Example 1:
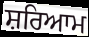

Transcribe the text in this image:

ਸ਼ਰਿਆਮ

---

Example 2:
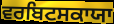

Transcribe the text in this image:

ਵਰਬਿਟਸਕਾਯਾ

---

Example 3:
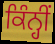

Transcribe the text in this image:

ਕਿੰਨ੍ਹੀਂ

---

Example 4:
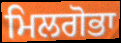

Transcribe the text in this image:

ਮਿਲਗੋਭਾ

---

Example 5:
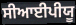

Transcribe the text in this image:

ਸੀਆਈਪੀਯੂ